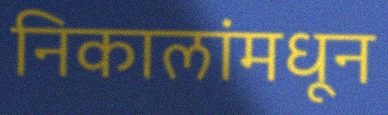
निकालांमधून